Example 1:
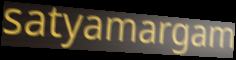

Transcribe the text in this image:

satyamargam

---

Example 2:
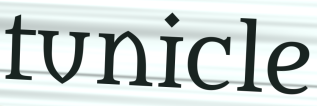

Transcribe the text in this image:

tunicle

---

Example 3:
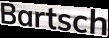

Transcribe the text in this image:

Bartsch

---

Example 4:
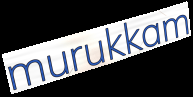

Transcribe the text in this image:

murukkam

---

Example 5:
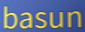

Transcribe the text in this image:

basun